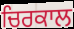
ਚਿਰਕਾਲ